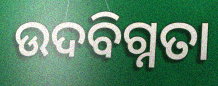
ଉଦବିଗ୍ନତା